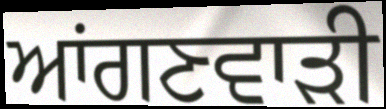
ਆਂਗਣਵਾੜੀ